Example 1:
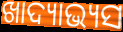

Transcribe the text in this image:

ଖାଦ୍ୟାଭ୍ୟସ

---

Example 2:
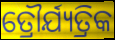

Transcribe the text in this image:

ତ୍ରୌର୍ଯ୍ୟତ୍ରିକ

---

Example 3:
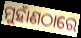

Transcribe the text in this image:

ମୁହାଁଣଠାରେ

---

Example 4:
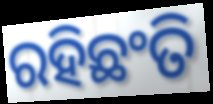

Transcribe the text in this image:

ରହିଛଂତି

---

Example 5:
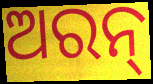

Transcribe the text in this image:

ଅରନ୍